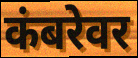
कंबरेवर